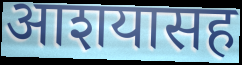
आशयासह